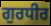
ਗੁਰਧੀਰ